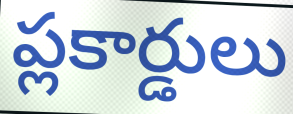
ప్లకార్డులు